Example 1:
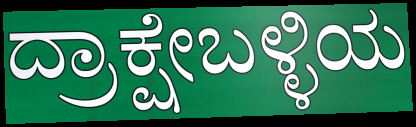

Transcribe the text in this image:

ದ್ರಾಕ್ಷೇಬಳ್ಳಿಯ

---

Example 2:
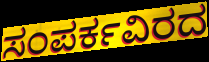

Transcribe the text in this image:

ಸಂಪರ್ಕವಿರದ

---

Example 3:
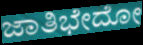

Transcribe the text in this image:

ಜಾತಿಭೇದೋ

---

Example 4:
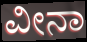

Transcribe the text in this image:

ವೀನಾ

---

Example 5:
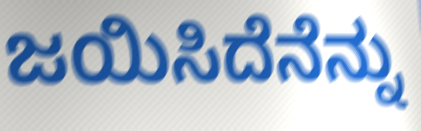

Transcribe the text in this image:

ಜಯಿಸಿದೆನೆನ್ನು